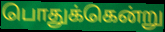
பொதுக்கென்று